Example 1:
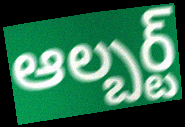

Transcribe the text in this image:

ఆల్బర్ట్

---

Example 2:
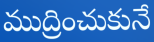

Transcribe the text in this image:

ముద్రించుకునే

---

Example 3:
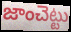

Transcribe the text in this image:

జాంచెట్టు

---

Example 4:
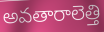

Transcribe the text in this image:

అవతారాలెత్తి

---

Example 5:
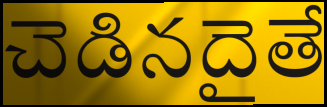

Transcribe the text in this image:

చెడినదైతే